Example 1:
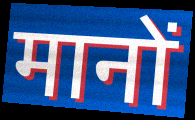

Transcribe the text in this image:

मानों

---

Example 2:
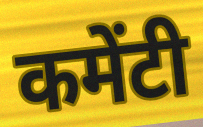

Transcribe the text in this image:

कमेंटी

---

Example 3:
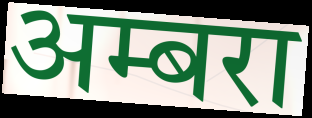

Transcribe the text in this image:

अम्बरा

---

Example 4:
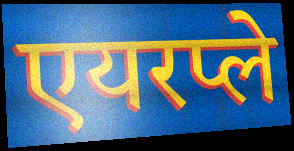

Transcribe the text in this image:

एयरप्ले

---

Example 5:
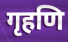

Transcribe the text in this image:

गृहणि